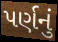
પર્ણનું